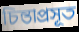
চিন্তাপ্রসূত